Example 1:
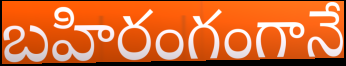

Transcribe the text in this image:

బహిరంగంగానే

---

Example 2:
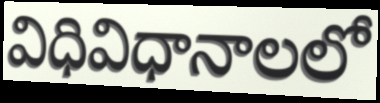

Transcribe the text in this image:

విధివిధానాలలో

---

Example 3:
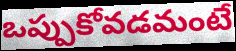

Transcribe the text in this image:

ఒప్పుకోవడమంటే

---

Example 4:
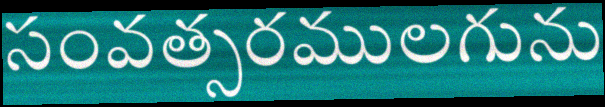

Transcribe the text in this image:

సంవత్సరములగును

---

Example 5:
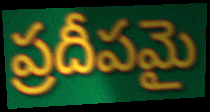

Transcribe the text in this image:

ప్రదీపమై